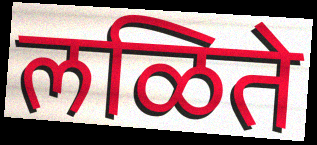
लळिते